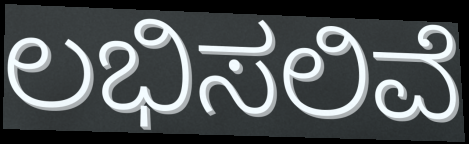
ಲಭಿಸಲಿವೆ